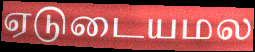
ஏடுடையமல